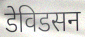
डेविडसन